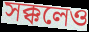
সক্কলেও